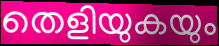
തെളിയുകയും